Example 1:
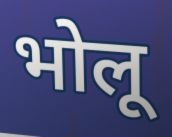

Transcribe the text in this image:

भोलू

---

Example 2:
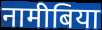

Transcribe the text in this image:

नामीबिया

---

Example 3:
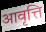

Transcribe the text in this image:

आवृत्ति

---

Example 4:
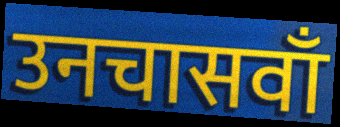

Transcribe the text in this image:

उनचासवाँ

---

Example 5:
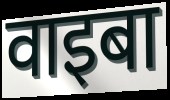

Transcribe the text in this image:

वाइबा